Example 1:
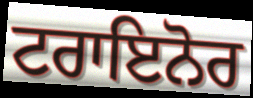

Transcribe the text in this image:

ਟਰਾਇਨੋਰ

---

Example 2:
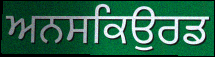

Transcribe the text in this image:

ਅਨਸਕਿਉਰਡ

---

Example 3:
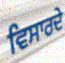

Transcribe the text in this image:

ਵਿਸਾਰਦੇ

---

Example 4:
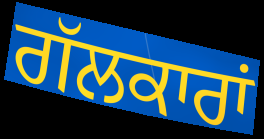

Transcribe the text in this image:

ਗੱਲਕਾਰਾਂ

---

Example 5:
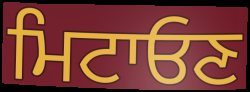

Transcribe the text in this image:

ਮਿਟਾਓਣ